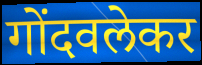
गोंदवलेकर